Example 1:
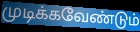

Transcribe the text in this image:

முடிக்கவேண்டும்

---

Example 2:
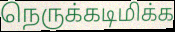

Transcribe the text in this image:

நெருக்கடிமிக்க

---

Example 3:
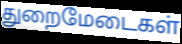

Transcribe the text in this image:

துறைமேடைகள்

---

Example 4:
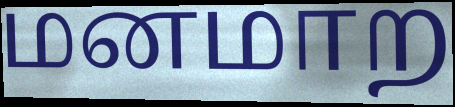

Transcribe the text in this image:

மனமாற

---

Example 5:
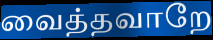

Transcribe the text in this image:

வைத்தவாறே